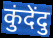
कुंदेंदु